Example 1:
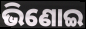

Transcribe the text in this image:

ଭିଣୋଇ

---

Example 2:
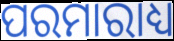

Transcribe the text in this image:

ପରମାରାଧ୍ୟ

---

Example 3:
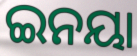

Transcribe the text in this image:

ଇନୟା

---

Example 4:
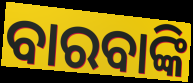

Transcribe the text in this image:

ବାରବାଙ୍କି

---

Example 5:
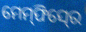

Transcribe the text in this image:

ମେମ୍‍ଫିସ୍‍ରେ